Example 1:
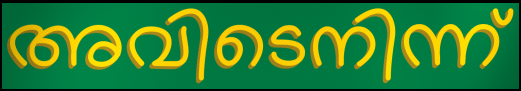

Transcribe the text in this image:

അവിടെനിന്ന്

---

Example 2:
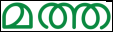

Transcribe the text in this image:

മത്ത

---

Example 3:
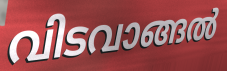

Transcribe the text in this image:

വിടവാങ്ങൽ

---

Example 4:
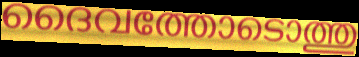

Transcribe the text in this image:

ദൈവത്തോടൊത്തു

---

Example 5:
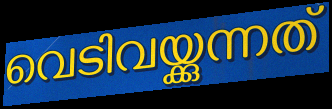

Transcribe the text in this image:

വെടിവയ്ക്കുന്നത്